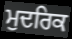
ਮੁਦਰਿਕ